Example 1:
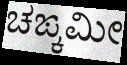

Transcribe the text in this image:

ಚಙ್ಕಮೀ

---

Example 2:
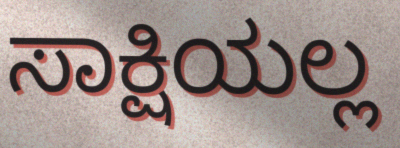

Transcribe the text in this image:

ಸಾಕ್ಷಿಯಲ್ಲ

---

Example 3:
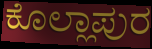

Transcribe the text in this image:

ಕೊಲ್ಲಾಪುರ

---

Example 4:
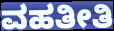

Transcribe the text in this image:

ವಹತೀತಿ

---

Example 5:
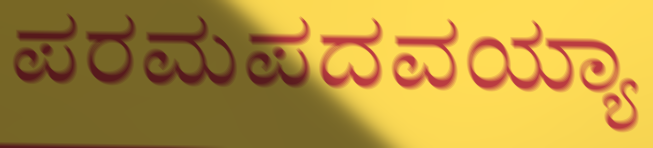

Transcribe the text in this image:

ಪರಮಪದವಯ್ಯಾ